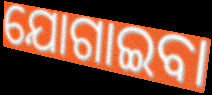
ଯୋଗାଇବା